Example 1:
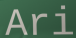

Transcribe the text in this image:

Ari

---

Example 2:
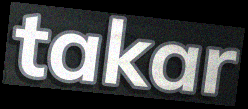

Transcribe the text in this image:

takar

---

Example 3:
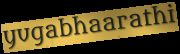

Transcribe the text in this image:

yugabhaarathi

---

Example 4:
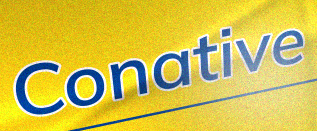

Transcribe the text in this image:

Conative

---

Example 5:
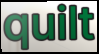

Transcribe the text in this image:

quilt